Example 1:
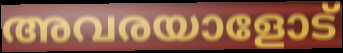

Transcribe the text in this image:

അവരയാളോട്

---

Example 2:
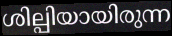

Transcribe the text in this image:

ശില്പിയായിരുന്ന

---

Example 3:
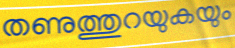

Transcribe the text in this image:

തണുത്തുറയുകയും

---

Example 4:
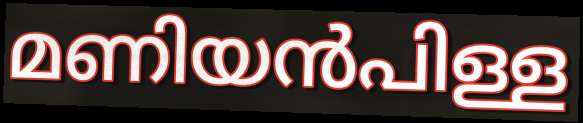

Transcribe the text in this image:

മണിയൻപിള്ള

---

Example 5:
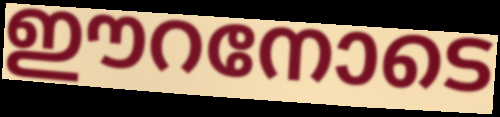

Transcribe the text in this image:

ഈറനോടെ